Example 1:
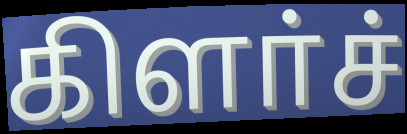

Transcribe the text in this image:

கிளர்ச்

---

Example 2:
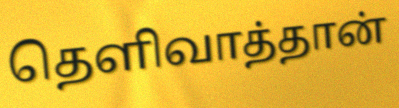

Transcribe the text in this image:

தெளிவாத்தான்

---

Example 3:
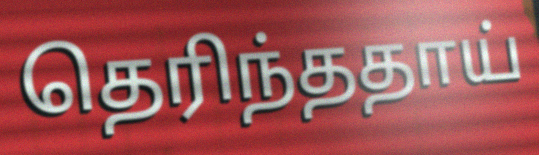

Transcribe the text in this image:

தெரிந்ததாய்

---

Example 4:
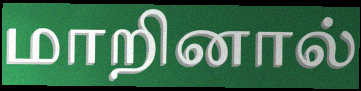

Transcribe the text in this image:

மாறினால்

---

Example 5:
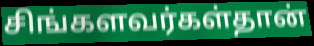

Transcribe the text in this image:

சிங்களவர்கள்தான்